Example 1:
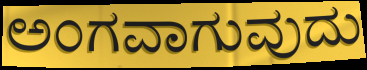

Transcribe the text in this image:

ಅಂಗವಾಗುವುದು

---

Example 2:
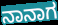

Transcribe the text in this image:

ನಾನಾಗ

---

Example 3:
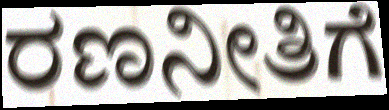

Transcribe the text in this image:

ರಣನೀತಿಗೆ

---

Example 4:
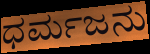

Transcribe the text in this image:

ಧರ್ಮಜನು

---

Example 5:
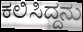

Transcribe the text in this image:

ಕಲಿಸಿದ್ದನು